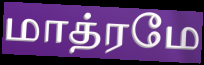
மாத்ரமே